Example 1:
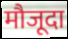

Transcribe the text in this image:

मौजूदा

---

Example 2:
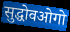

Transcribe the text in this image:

सुद्धोवओगो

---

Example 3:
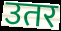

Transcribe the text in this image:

उतर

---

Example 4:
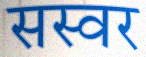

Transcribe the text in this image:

सस्वर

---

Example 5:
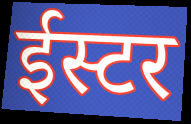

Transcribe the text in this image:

ईस्टर